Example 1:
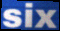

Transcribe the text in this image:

six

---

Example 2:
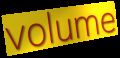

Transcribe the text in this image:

volume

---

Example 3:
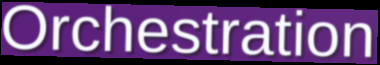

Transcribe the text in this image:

Orchestration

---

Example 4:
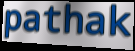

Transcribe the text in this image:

pathak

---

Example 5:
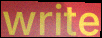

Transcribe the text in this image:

write